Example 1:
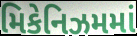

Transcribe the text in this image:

મિકેનિઝમમાં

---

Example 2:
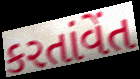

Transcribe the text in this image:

કરતાંવેંત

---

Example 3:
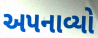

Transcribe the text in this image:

અપનાવ્યો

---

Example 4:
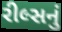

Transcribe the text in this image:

રીલ્સનું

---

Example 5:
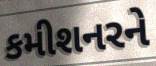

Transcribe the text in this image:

કમીશનરને